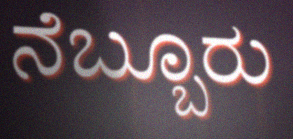
ನೆಬ್ಬೂರು